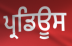
ਪ੍ਰਡਿਊਸ